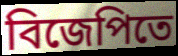
বিজেপিতে